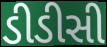
ડીડીસી